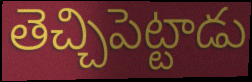
తెచ్చిపెట్టాడు